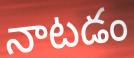
నాటడం